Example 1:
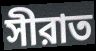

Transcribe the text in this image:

সীরাত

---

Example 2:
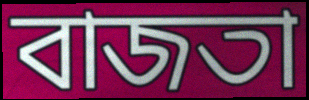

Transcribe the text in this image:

বাজতা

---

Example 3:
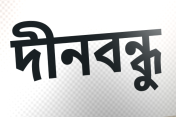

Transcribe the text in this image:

দীনবন্ধু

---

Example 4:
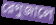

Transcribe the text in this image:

রেণুজালে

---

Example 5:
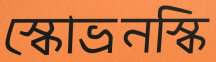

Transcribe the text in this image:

স্কোভ্রনস্কি